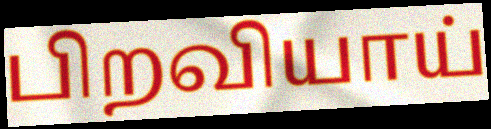
பிறவியாய்